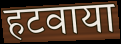
हटवाया